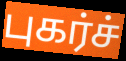
புகர்ச்